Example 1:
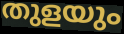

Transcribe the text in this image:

തുളയും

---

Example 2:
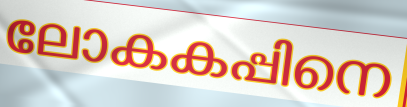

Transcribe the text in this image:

ലോകകപ്പിനെ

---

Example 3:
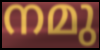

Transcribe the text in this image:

നമു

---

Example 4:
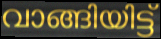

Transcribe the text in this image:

വാങ്ങിയിട്ട്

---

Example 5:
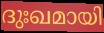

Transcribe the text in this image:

ദുഃഖമായി